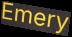
Emery